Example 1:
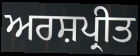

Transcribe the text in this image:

ਅਰਸ਼ਪ੍ਰੀਤ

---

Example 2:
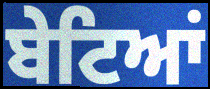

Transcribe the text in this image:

ਬੇਟਿਆਂ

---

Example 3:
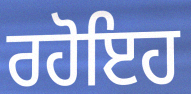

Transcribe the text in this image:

ਰਹੋਇਹ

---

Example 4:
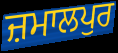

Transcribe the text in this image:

ਜ਼ਮਾਲਪੁਰ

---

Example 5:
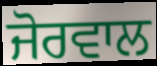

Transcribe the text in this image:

ਜੋਰਵਾਲ